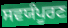
ਸਵਯੰਪੂਰਣ